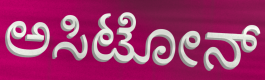
ಅಸಿಟೋನ್